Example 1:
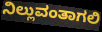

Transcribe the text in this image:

ನಿಲ್ಲುವಂತಾಗಲಿ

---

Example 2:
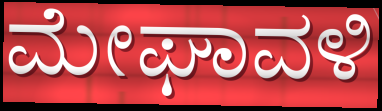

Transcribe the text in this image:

ಮೇಘಾವಳಿ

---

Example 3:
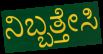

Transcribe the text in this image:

ನಿಬ್ಬತ್ತೇಸಿ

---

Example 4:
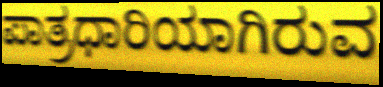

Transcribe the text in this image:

ಪಾತ್ರಧಾರಿಯಾಗಿರುವ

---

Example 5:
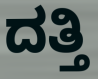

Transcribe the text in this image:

ದತ್ತಿ